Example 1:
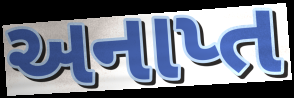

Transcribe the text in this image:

અનાપ્ત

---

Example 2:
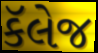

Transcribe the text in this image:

કૅલેજ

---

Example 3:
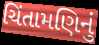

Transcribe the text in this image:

ચિંતામણિનું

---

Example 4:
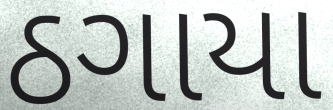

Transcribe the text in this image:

ઠગાયા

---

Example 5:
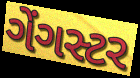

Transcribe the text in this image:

ગેંગસ્ટર